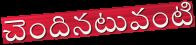
చెందినటువంటి